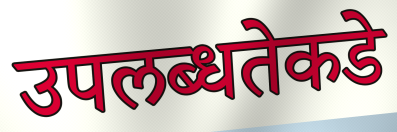
उपलब्धतेकडे